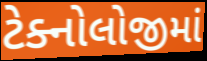
ટેક્નોલોજીમાં